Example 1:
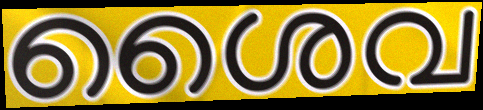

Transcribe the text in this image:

ശൈവ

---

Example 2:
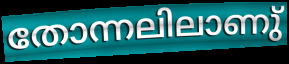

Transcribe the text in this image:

തോന്നലിലാണു്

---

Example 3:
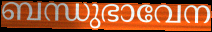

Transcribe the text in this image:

ബന്ധുഭാവേന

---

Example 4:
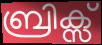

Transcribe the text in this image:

ബ്രിക്സ്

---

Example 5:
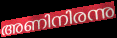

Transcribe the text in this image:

അണിനിരന്നു